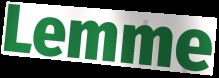
Lemme